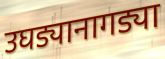
उघड्यानागड्या